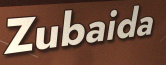
Zubaida